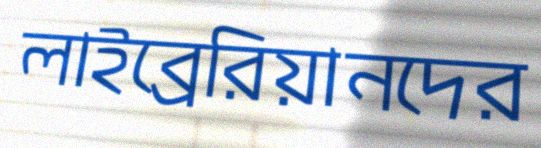
লাইব্রেরিয়ানদের